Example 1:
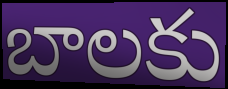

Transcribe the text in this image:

బాలకు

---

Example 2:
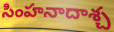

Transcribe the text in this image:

సింహనాదాశ్చ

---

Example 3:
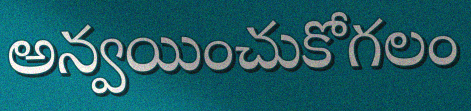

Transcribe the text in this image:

అన్వయించుకోగలం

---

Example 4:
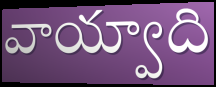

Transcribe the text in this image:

వాయ్వాది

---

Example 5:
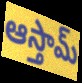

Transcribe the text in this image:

ఆస్తామ్